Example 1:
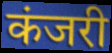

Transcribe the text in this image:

कंजरी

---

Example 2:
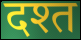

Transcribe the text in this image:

दश्त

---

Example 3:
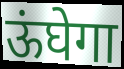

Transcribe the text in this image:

ऊंघेगा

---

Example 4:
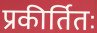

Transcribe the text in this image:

प्रकीर्तितः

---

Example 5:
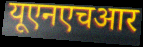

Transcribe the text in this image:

यूएनएचआर